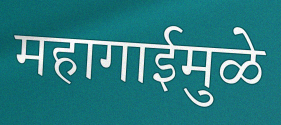
महागाईमुळे